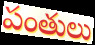
పంతులు